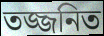
তজ্জনিত